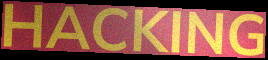
HACKING